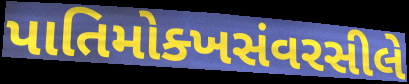
પાતિમોક્ખસંવરસીલે